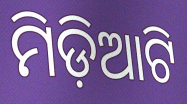
ମିଡ଼ିଆଟି